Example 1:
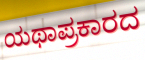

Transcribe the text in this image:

ಯಥಾಪ್ರಕಾರದ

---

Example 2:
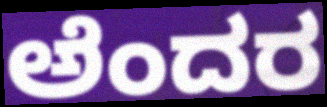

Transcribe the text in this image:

ಅೆಂದರ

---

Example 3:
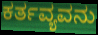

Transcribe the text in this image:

ಕರ್ತವ್ಯವನು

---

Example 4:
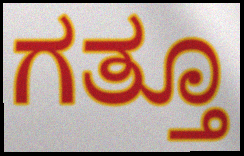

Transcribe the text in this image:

ಗತ್ತೂ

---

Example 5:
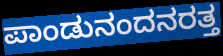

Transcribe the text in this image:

ಪಾಂಡುನಂದನರತ್ತ